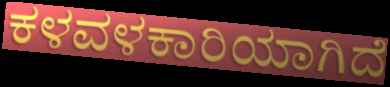
ಕಳವಳಕಾರಿಯಾಗಿದೆ